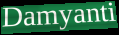
Damyanti